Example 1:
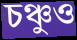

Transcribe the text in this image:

চঞ্চুও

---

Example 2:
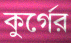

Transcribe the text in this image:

কুর্গের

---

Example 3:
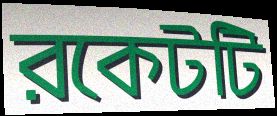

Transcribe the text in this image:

রকেটটি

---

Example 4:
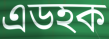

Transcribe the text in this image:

এডহক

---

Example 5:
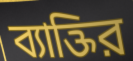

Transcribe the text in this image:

ব্যাক্তির